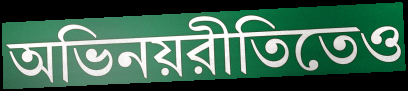
অভিনয়রীতিতেও